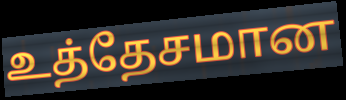
உத்தேசமான